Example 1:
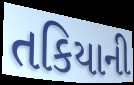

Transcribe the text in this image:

તકિયાની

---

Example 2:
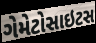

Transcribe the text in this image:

ગેમેટોસાઇટસ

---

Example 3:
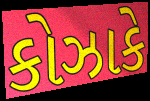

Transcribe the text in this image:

કોઝાકે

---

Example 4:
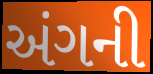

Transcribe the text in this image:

અંગની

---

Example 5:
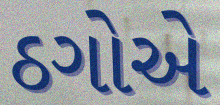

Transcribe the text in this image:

ઠગોએ